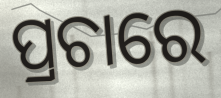
ପ୍ରଚାରେ